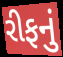
રીફનું